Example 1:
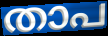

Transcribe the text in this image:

താപ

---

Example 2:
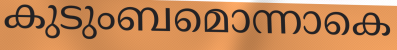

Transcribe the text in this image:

കുടുംബമൊന്നാകെ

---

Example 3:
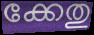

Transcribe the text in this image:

ക്കേതു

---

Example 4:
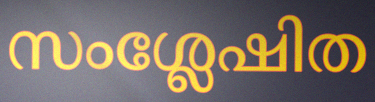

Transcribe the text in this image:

സംശ്ലേഷിത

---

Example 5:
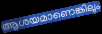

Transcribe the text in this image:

ആശയമാണെങ്കിലും